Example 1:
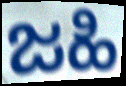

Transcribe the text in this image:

ಜಹಿ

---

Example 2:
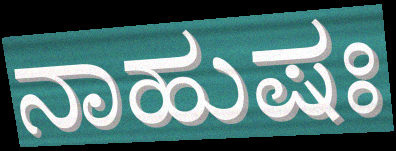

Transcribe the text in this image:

ನಾಹುಷಃ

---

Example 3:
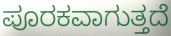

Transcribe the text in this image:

ಪೂರಕವಾಗುತ್ತದೆ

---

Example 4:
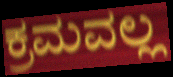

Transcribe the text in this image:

ಕ್ರಮವಲ್ಲ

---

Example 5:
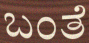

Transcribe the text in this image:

ಬಂತೆ